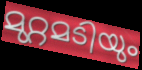
മുറ്റമടിയും